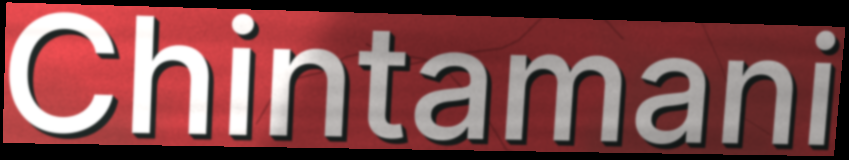
Chintamani